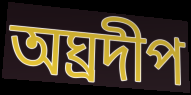
অঘ্ৰদীপ